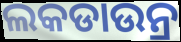
ଲକଡାଉନ୍ର